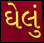
ઘેલું